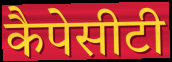
कैपेसीटी